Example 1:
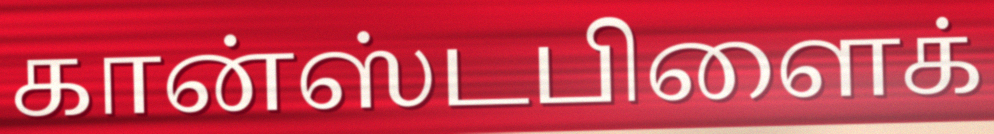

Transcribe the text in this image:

கான்ஸ்டபிளைக்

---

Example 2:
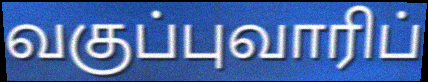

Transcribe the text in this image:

வகுப்புவாரிப்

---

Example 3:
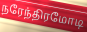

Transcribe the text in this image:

நரேந்திரமோடி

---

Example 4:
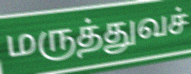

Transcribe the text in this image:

மருத்துவச்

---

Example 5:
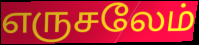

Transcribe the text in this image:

எருசலேம்